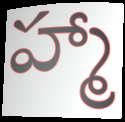
హ్మా